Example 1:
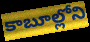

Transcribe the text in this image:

కాబూల్లోని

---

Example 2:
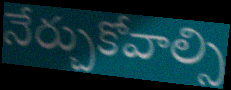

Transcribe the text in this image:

నేర్చుకోవాల్సి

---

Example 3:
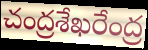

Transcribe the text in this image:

చంద్రశేఖరేంద్ర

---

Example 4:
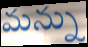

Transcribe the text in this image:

మన్ను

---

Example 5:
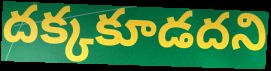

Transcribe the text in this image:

దక్కకూడదని